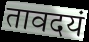
तावदयं